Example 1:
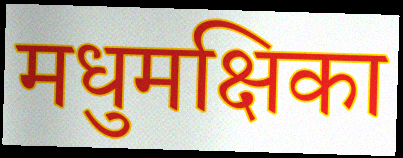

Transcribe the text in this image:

मधुमक्षिका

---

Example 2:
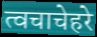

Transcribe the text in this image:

त्वचाचेहरे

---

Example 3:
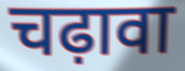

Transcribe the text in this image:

चढ़ावा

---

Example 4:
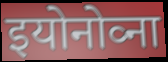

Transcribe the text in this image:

इयोनोव्ना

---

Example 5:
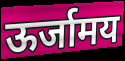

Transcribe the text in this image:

ऊर्जामय